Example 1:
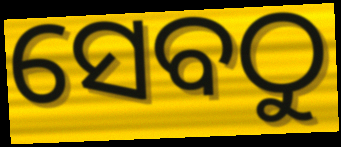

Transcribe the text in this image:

ସେବଠୁ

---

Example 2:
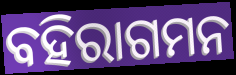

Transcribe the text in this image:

ବହିରାଗମନ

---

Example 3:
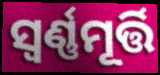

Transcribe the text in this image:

ସ୍ଵର୍ଣ୍ଣମୂର୍ତ୍ତି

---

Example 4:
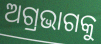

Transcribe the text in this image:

ଅଗ୍ରଭାଗକୁ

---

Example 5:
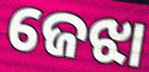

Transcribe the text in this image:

ଜେଝା